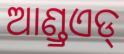
ଆଣ୍ଡ୍ରଏଡ୍